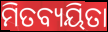
ମିତବ୍ୟୟିତା